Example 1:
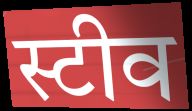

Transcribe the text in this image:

स्टीव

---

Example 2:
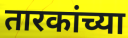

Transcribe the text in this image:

तारकांच्या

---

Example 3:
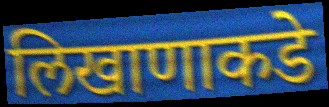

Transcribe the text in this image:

लिखाणाकडे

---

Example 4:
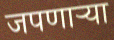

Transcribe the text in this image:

जपणाऱ्या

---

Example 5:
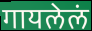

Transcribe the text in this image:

गायलेलं